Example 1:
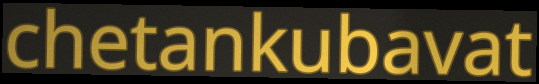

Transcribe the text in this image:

chetankubavat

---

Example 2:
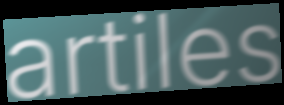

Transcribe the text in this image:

artiles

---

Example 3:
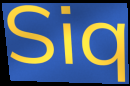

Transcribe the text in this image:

Siq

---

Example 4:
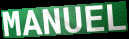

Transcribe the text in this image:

MANUEL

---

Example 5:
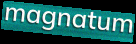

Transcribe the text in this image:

magnatum